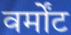
वर्मोंट